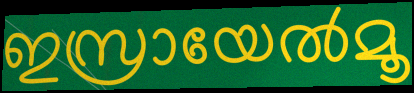
ഇസ്രായേൽമൂ